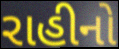
રાહીનો